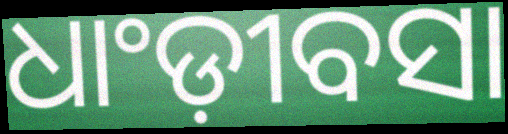
ଧାଂଡ଼ୀବସା